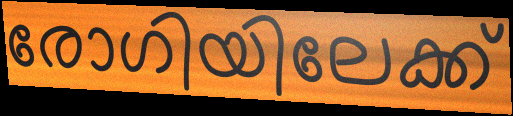
രോഗിയിലേക്ക്